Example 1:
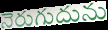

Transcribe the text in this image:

నెరుగుదును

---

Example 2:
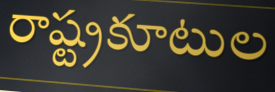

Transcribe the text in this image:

రాష్ట్రకూటుల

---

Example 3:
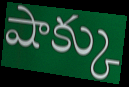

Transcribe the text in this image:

షాక్కు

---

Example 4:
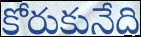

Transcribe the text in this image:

కోరుకునేది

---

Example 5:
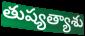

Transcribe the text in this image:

తుష్యత్యాశు